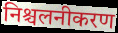
निश्चलनीकरण